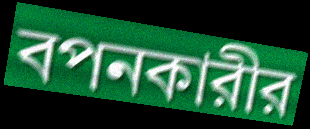
বপনকারীর